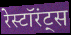
रेस्टॉरंट्‌स